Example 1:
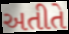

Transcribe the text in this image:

અતીતે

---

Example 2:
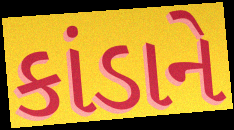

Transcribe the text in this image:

કાંડાને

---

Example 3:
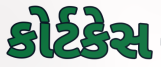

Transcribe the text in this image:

કોર્ટકેસ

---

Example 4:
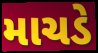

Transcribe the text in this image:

માચડે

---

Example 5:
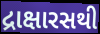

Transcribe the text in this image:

દ્રાક્ષારસથી